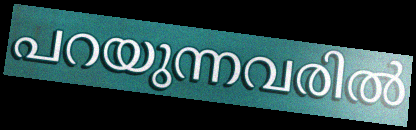
പറയുന്നവരിൽ